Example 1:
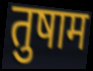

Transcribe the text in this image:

तुषाम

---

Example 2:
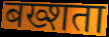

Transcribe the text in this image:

बख्शता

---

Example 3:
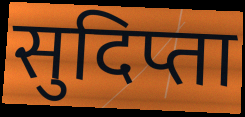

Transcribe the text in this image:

सुदिप्ता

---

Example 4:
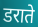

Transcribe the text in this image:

डराते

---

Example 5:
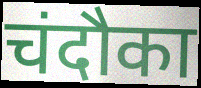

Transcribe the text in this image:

चंदौका